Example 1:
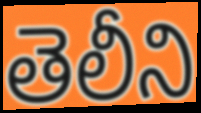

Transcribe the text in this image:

తెలీని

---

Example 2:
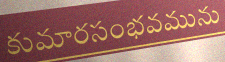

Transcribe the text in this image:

కుమారసంభవమును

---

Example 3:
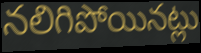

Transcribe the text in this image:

నలిగిపోయినట్లు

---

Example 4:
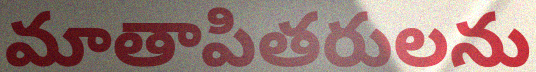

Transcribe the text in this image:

మాతాపితరులను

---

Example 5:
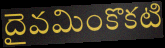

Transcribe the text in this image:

దైవమింకొకటి